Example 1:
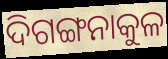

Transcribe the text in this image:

ଦିଗଙ୍ଗନାକୁଳ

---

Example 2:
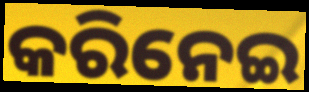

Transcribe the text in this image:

କରିନେଇ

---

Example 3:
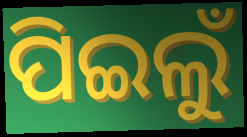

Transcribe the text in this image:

ପିଇଲୁଁ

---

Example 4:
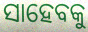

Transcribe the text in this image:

ସାହେବକୁ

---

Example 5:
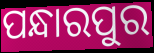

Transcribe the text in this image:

ପନ୍ଧାରପୁର